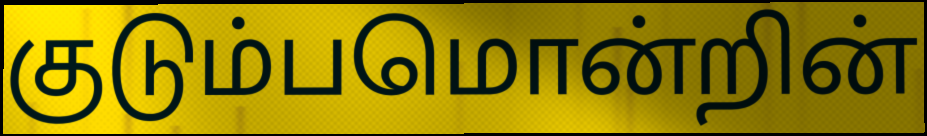
குடும்பமொன்றின்